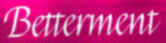
Betterment